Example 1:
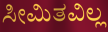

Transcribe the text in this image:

ಸೀಮಿತವಿಲ್ಲ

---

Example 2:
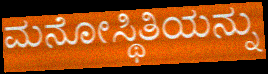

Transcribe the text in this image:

ಮನೋಸ್ಥಿತಿಯನ್ನು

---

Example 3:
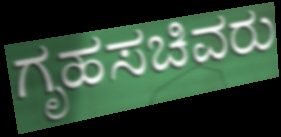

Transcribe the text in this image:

ಗೃಹಸಚಿವರು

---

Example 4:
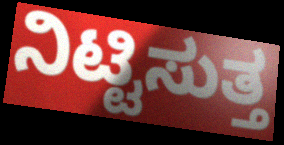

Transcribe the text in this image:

ನಿಟ್ಟಿಸುತ್ತ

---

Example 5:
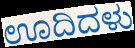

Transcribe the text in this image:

ಊದಿದಳು